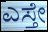
ಎಸ್ತೇ